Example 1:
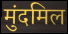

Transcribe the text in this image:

मुंदमिल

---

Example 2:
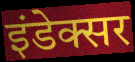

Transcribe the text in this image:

इंडेक्सर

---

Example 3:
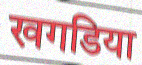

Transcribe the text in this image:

खगडिया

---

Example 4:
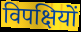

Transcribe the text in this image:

विपक्षियों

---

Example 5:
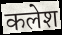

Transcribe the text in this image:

कलेश